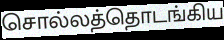
சொல்லத்தொடங்கிய